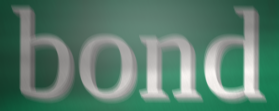
bond